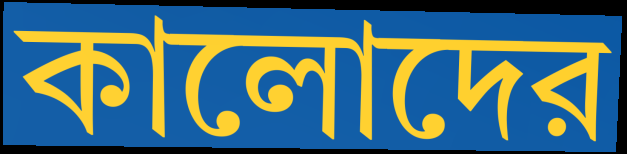
কালোদের